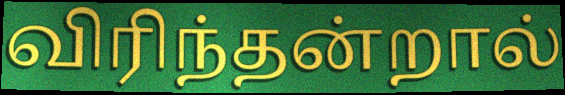
விரிந்தன்றால்